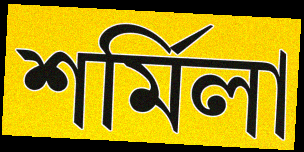
শৰ্মিলা